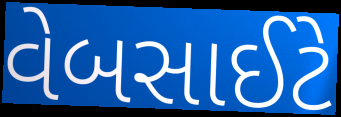
વેબસાઈટે